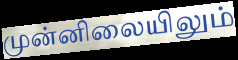
முன்னிலையிலும்